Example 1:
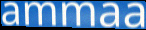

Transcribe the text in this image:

ammaa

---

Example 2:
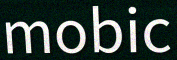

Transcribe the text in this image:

mobic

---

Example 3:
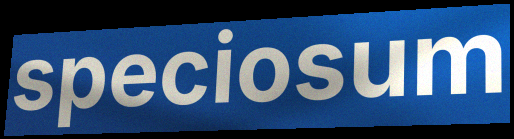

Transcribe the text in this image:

speciosum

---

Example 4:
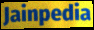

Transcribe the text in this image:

Jainpedia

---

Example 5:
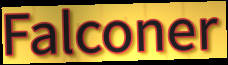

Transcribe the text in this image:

Falconer